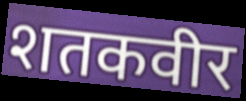
शतकवीर